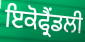
ਇਕੋਫ੍ਰੈਂਡਲੀ